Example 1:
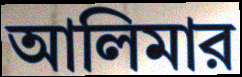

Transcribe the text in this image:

আলিমার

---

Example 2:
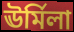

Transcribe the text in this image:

ঊর্মিলা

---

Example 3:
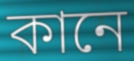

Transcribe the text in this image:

কানে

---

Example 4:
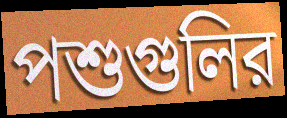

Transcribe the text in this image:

পশুগুলির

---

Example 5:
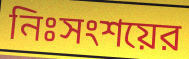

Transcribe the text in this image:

নিঃসংশয়ের